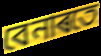
বেনাৰতে